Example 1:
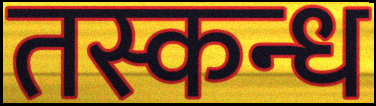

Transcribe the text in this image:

तस्कन्ध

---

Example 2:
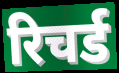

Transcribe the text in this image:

रिचर्ड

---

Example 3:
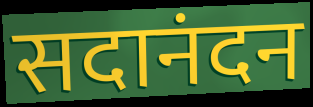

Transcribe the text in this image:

सदानंदन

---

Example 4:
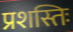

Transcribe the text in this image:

प्रशस्तिः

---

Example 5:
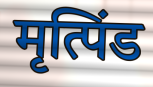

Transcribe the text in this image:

मृत्पिंड